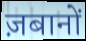
ज़बानों